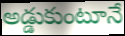
అడ్డుకుంటూనే